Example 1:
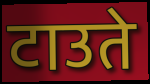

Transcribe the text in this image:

टाउते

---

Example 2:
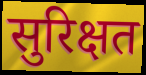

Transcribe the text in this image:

सुरिक्षत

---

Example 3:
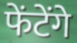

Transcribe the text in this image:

फेंटेंगे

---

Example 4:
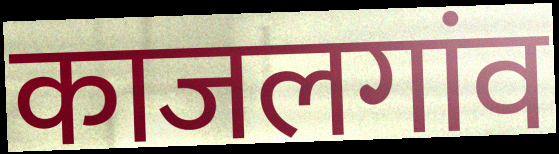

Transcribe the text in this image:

काजलगांव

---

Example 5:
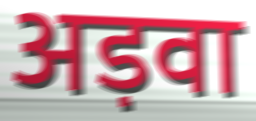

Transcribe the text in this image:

अड़वा